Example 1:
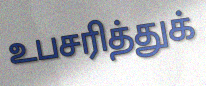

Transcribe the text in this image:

உபசரித்துக்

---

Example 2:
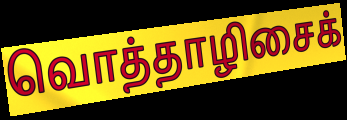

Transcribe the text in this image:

வொத்தாழிசைக்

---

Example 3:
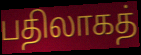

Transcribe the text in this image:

பதிலாகத்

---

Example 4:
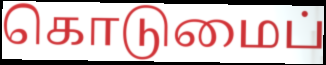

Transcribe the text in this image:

கொடுமைப்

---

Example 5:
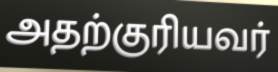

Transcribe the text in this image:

அதற்குரியவர்